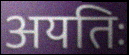
अयतिः